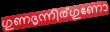
ഗുണഭൃന്നിര്ഗുണോ